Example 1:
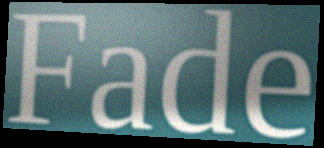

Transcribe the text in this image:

Fade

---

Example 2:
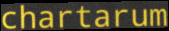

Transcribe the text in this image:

chartarum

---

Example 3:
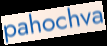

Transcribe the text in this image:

pahochva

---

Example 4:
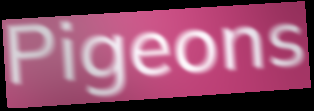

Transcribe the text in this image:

Pigeons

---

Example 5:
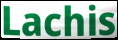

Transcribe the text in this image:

Lachis